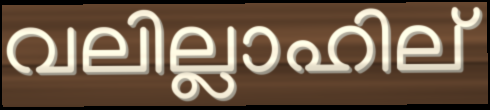
വലില്ലാഹില്